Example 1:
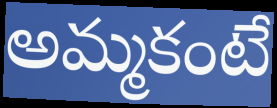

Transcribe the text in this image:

అమ్మకంటే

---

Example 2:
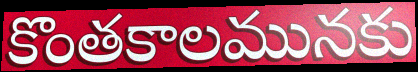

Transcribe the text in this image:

కొంతకాలమునకు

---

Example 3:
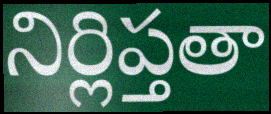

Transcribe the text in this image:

నిర్లిప్తతా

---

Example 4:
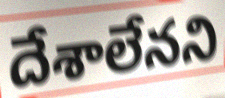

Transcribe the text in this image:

దేశాలేనని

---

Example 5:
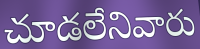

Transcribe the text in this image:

చూడలేనివారు